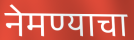
नेमण्याचा